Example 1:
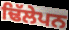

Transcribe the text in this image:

ਢਿੱਲੇਪਨ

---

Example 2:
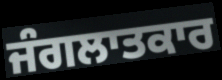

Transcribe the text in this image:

ਜੰਗਲਾਤਕਾਰ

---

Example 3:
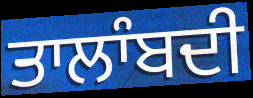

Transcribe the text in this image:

ਤਾਲਾੰਬਦੀ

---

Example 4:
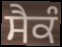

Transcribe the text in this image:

ਸੈਕੰ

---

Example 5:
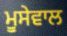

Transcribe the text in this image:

ਮੂਸੇਵਾਲ